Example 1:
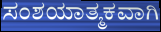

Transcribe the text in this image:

ಸಂಶಯಾತ್ಮಕವಾಗಿ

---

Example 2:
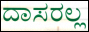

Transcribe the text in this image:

ದಾಸರಲ್ಲ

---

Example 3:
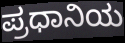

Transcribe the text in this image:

ಪ್ರಧಾನಿಯ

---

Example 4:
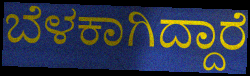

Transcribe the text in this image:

ಬೆಳಕಾಗಿದ್ದಾರೆ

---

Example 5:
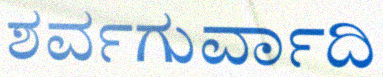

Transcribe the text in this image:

ಶರ್ವಗುರ್ವಾದಿ